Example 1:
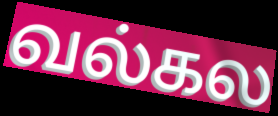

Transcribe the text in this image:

வல்கல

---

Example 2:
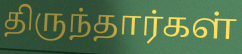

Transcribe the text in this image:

திருந்தார்கள்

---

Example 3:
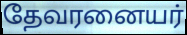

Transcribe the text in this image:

தேவரனையர்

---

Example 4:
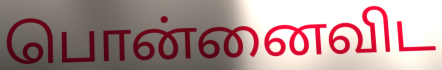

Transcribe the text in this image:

பொன்னைவிட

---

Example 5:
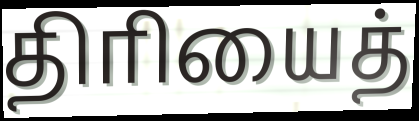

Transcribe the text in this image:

திரியைத்